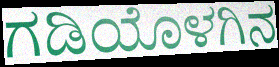
ಗಡಿಯೊಳಗಿನ